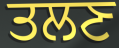
ਤਲਣ